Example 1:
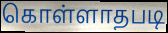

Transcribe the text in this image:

கொள்ளாதபடி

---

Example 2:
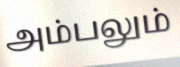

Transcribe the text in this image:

அம்பலும்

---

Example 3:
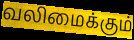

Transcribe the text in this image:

வலிமைக்கும்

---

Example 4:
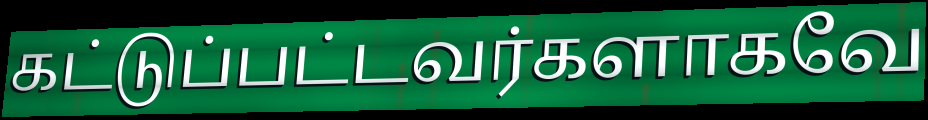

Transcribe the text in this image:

கட்டுப்பட்டவர்களாகவே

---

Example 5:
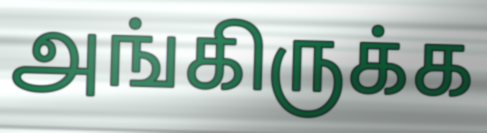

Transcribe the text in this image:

அங்கிருக்க